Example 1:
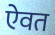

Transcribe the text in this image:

ऐवत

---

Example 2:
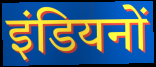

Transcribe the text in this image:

इंडियनों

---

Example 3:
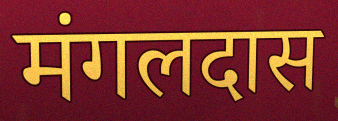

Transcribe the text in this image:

मंगलदास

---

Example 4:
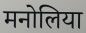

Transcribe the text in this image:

मनोलिया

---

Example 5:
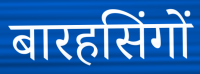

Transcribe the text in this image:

बारहसिंगों